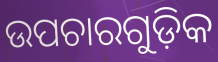
ଉପଚାରଗୁଡ଼ିକ